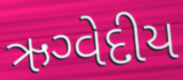
ઋગ્વેદીય